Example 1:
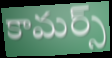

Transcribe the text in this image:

కామర్స్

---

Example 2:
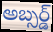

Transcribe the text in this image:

అబ్సర్డ్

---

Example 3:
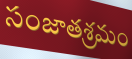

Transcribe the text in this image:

సంజాతశ్రమం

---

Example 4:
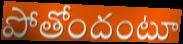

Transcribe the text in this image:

పోతోందంటూ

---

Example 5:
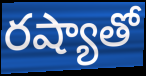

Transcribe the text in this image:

రష్యాతో